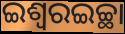
ଇଶ୍ୱରଇଚ୍ଛା